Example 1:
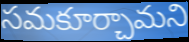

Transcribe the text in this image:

సమకూర్చామని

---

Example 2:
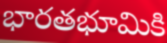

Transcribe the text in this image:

భారతభూమికి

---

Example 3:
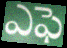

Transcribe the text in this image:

ఎఫె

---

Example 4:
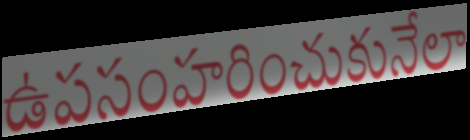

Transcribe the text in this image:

ఉపసంహరించుకునేలా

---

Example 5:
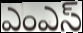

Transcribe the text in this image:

ఎంఎస్